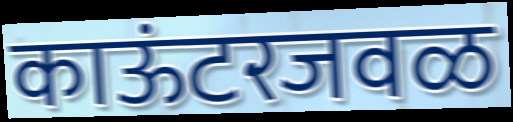
काऊंटरजवळ